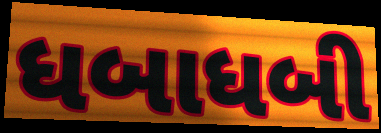
ધબાધબી